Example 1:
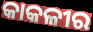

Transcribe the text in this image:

କାକଳୀର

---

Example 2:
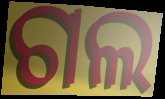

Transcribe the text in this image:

ଗଲ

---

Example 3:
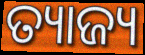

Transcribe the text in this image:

ତ୍ୟାଜ୍ୟ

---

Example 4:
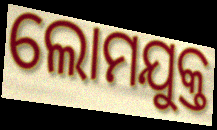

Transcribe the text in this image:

ଲୋମଯୁକ୍ତ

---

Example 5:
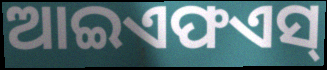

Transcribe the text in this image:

ଆଇଏଫଏସ୍